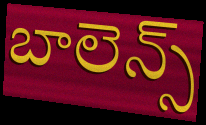
బాలెన్స్